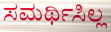
ಸಮರ್ಥಿಸಿಲ್ಲ